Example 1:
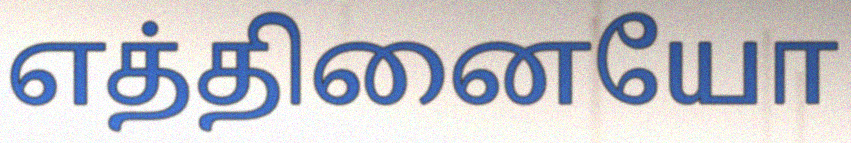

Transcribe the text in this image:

எத்தினையோ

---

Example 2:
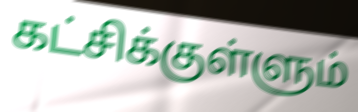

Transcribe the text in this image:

கட்சிக்குள்ளும்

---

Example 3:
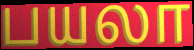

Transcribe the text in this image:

பயலா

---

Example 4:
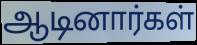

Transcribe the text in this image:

ஆடினார்கள்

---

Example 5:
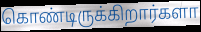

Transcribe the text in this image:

கொண்டிருக்கிறார்களா